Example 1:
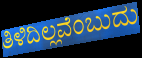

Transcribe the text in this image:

ತಿಳಿದಿಲ್ಲವೆಂಬುದು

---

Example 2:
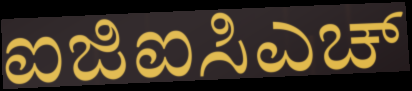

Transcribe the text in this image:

ಐಜಿಐಸಿಎಚ್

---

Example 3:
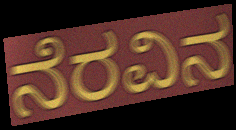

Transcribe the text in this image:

ನೆರವಿನ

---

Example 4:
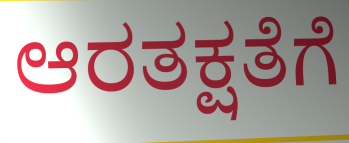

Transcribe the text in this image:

ಆರತಕ್ಷತೆಗೆ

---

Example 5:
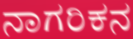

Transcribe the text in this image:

ನಾಗರಿಕನ